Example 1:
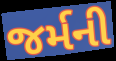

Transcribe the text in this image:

જર્મની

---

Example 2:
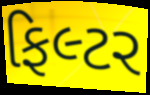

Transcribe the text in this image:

ફિલ્ટર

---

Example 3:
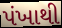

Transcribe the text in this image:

પંખાથી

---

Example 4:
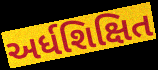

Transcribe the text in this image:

અર્ધશિક્ષિત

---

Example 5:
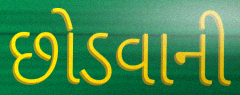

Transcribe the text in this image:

છોડવાની